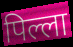
पिल्ला